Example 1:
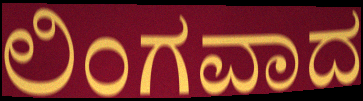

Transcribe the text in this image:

ಲಿಂಗವಾದ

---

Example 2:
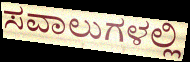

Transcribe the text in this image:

ಸವಾಲುಗಳಲ್ಲಿ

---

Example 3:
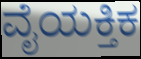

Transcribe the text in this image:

ವೈಯಕ್ತಿಕ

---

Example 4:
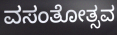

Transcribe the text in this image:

ವಸಂತೋತ್ಸವ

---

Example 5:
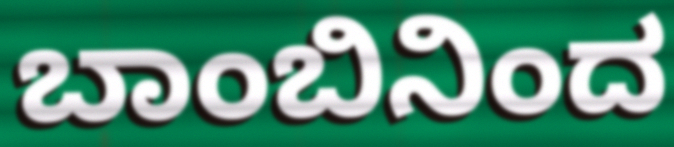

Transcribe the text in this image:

ಬಾಂಬಿನಿಂದ